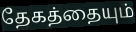
தேகத்தையும்